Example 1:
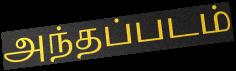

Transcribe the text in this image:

அந்தப்படம்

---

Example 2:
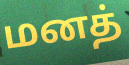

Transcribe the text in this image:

மனத்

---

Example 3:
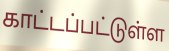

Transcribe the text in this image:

காட்டப்பட்டுள்ள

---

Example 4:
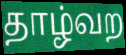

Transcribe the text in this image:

தாழ்வற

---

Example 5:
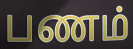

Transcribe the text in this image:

பணம்